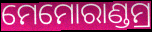
ମେମୋରାଣ୍ଡମ୍ର